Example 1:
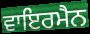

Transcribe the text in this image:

ਵਾਇਰਮੈਨ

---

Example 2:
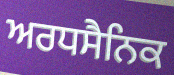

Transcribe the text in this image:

ਅਰਧਸੈਨਿਕ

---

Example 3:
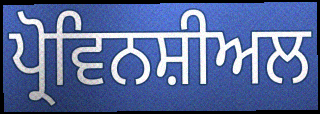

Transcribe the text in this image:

ਪ੍ਰੋਵਿਨਸ਼ੀਅਲ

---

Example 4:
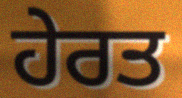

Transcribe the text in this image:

ਹੇਰਤ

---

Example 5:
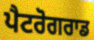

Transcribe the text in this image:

ਪੈਟਰੋਗਰਾਡ